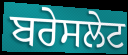
ਬਰੇਸਲੇਟ